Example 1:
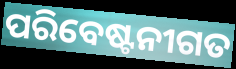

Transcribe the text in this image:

ପରିବେଷ୍ଟନୀଗତ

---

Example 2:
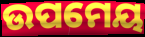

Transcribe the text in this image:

ଉପମେୟ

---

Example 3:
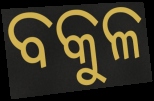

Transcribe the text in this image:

ବକୁଳ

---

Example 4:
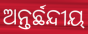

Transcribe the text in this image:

ଅନ୍ତର୍ଛନ୍ଦୀୟ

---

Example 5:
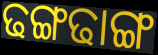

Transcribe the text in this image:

ଢଙ୍ଗଢାଙ୍ଗ